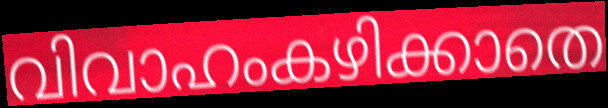
വിവാഹംകഴിക്കാതെ